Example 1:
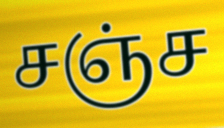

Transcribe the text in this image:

சஞ்ச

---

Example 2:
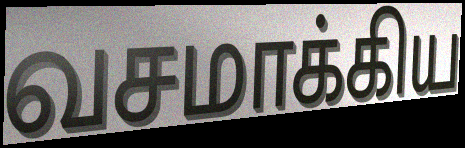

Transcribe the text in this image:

வசமாக்கிய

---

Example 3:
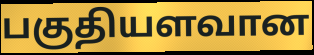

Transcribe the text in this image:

பகுதியளவான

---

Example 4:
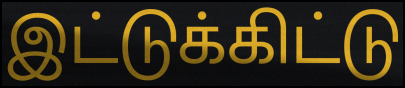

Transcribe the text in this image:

இட்டுக்கிட்டு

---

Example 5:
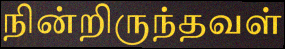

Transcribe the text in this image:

நின்றிருந்தவள்